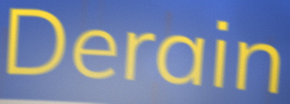
Derain